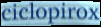
ciclopirox